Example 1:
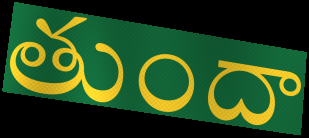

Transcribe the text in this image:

తుందా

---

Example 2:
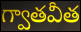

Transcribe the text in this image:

గ్వాతవీత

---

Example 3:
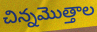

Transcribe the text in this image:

చిన్నమొత్తాల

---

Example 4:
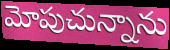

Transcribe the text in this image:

మోపుచున్నాను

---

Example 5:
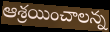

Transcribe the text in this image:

ఆశ్రయించాలన్న